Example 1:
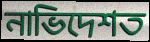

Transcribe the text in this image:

নাভিদেশত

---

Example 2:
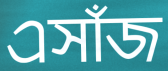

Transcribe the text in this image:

এসাঁজ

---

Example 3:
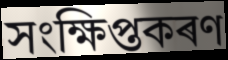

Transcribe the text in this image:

সংক্ষিপ্তকৰণ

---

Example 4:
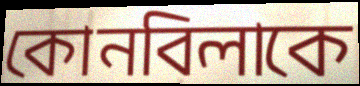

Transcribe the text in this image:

কোনবিলাকে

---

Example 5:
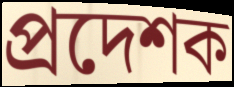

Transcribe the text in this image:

প্ৰদেশক